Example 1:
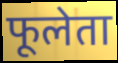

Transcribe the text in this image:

फूलेता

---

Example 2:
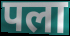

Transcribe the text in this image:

पला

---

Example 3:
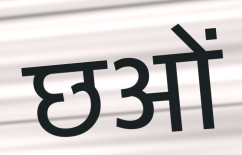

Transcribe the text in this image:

छओं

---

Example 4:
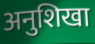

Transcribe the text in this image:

अनुशिखा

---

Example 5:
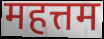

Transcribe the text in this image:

महत्तम